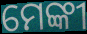
ମେଙ୍କୀ